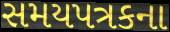
સમયપત્રકના